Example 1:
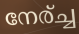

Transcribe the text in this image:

നേര്ച്ച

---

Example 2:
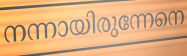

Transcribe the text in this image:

നന്നായിരുന്നേനെ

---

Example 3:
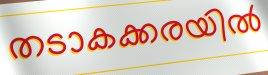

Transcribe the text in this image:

തടാകക്കരയിൽ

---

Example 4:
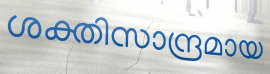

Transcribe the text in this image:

ശക്തിസാന്ദ്രമായ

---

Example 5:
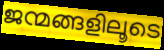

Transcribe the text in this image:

ജന്മങ്ങളിലൂടെ